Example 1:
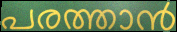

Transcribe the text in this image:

പരത്താൻ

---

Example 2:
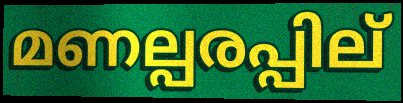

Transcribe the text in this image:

മണല്പരപ്പില്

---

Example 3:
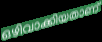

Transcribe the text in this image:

ഒഴിവാക്കിയതാണ്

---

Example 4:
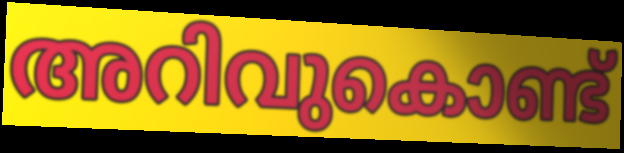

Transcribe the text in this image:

അറിവുകൊണ്ട്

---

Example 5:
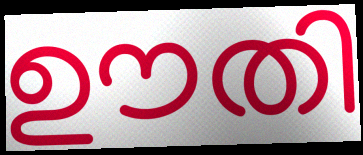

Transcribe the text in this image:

ഊതി